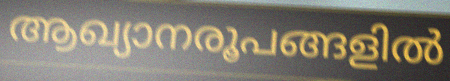
ആഖ്യാനരൂപങ്ങളിൽ